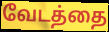
வேடத்தை